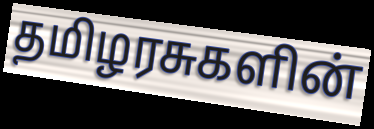
தமிழரசுகளின்